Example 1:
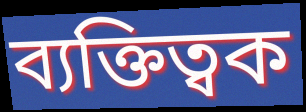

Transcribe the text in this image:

ব্যক্তিত্বক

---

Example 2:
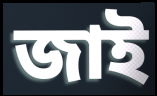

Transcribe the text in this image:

জাই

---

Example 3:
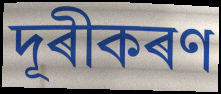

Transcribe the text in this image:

দূৰীকৰণ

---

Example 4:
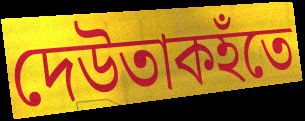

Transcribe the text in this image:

দেউতাকহঁতে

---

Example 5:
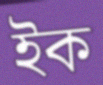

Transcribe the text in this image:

ইক